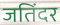
जतिंदर